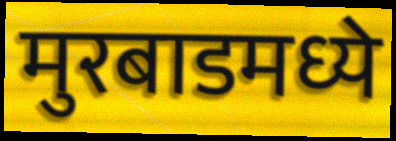
मुरबाडमध्ये